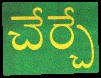
చేర్చే